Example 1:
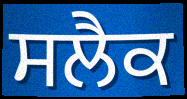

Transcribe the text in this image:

ਸਲੈਕ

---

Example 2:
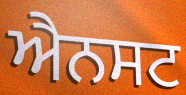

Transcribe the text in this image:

ਐਨਸਟ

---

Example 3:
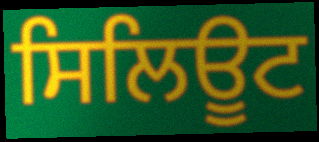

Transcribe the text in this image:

ਸਿਲਿਊਟ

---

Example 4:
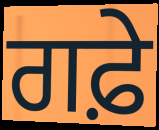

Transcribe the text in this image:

ਗਫ਼ੇ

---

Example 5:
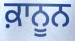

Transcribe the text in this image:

ਕ਼ਾਨੂਨ